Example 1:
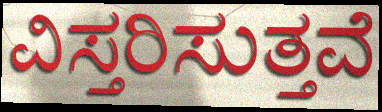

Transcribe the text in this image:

ವಿಸ್ತರಿಸುತ್ತವೆ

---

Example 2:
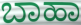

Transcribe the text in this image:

ಬಾಹಾ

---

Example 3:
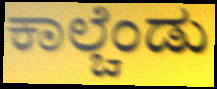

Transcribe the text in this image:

ಕಾಲ್ಚೆಂಡು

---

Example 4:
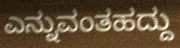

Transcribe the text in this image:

ಎನ್ನುವಂತಹದ್ದು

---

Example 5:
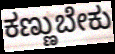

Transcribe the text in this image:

ಕಣ್ಣುಬೇಕು